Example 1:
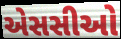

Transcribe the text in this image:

એસસીઓ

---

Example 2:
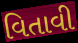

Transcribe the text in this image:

વિતાવી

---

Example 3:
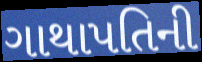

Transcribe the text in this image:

ગાથાપતિની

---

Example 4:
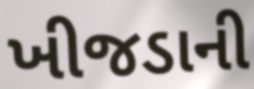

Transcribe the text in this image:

ખીજડાની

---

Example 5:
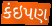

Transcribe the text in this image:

કંઇપણ